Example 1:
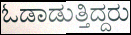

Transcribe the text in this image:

ಓಡಾಡುತ್ತಿದ್ದರು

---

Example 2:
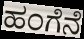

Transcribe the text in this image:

ಹಂಗೆನೆ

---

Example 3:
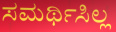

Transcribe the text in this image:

ಸಮರ್ಥಿಸಿಲ್ಲ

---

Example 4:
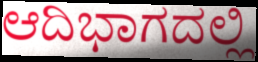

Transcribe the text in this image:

ಆದಿಭಾಗದಲ್ಲಿ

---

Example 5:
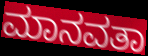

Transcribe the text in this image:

ಮಾನವತಾ